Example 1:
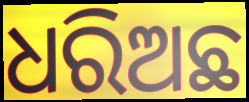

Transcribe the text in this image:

ଧରିଅଛ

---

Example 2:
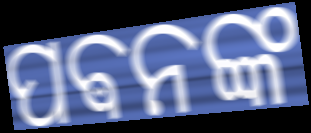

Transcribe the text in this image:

ପଵନଙ୍କ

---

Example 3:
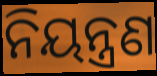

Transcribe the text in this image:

ନିୟନ୍ତ୍ରଣ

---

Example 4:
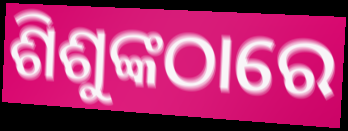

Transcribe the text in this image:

ଶିଶୁଙ୍କଠାରେ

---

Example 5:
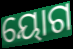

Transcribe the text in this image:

ୟୋଗ